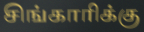
சிங்காரிக்கு